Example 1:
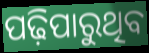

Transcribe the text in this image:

ପଢ଼ିପାରୁଥିବ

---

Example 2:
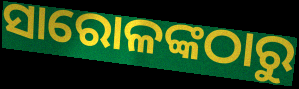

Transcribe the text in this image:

ସାରୋଳଙ୍କଠାରୁ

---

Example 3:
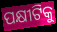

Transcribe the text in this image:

ପକ୍ଷୀଟିକୁ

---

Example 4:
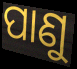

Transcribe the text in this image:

ପାଣୁ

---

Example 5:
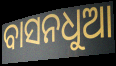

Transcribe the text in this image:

ବାସନଧୁଆ